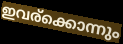
ഇവര്ക്കൊന്നും